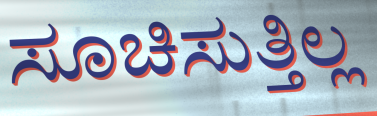
ಸೂಚಿಸುತ್ತಿಲ್ಲ